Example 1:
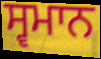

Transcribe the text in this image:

ਸ੍ਵਮਾਨ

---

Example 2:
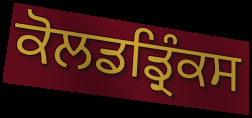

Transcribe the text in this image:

ਕੋਲਡਡ੍ਰਿੰਕਸ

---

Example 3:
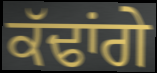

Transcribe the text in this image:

ਕੱਢਾਂਗੇ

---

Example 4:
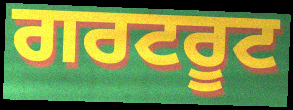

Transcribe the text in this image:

ਗਰਟਰੂਟ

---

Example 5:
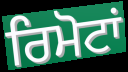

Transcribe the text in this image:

ਰਿਮੋਟਾਂ